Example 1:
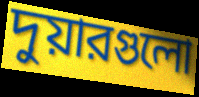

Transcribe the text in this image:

দুয়ারগুলো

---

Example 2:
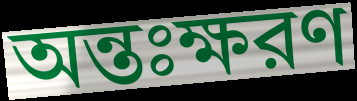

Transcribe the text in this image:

অন্তঃক্ষরণ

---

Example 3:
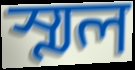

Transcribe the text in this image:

স্মল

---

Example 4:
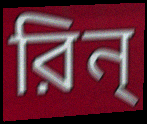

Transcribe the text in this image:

রিন্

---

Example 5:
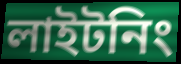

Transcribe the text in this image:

লাইটনিং